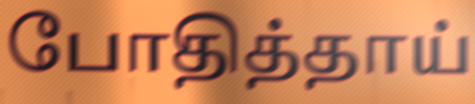
போதித்தாய்